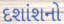
દશાંશનો